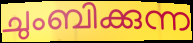
ചുംബിക്കുന്ന